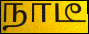
நாடீ